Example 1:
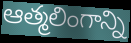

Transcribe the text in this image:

ఆత్మలింగాన్ని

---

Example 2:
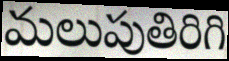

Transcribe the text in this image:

మలుపుతిరిగి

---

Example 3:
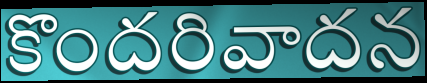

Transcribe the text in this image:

కొందరివాదన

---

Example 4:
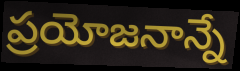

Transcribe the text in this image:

ప్రయోజనాన్నే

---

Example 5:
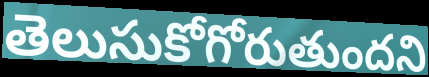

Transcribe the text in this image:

తెలుసుకోగోరుతుందని